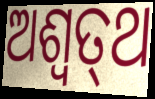
ଅଶ୍ଵତ୍‍ଥ